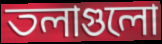
তলাগুলো